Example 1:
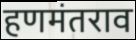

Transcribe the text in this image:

हणमंतराव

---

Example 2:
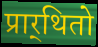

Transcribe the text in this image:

प्रार्थितो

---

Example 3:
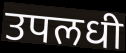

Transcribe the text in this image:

उपलधी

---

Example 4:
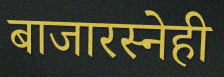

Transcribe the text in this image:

बाजारस्नेही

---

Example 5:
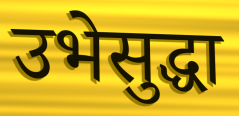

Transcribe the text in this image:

उभेसुद्धा